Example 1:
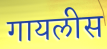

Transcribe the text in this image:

गायलीस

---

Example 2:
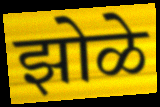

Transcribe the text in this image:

झोळे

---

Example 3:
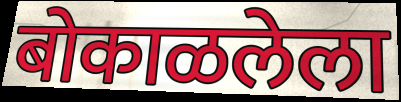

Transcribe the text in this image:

बोकाळलेला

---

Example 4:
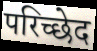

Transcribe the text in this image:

परिच्छेद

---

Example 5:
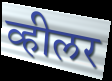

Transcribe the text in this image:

व्हीलर